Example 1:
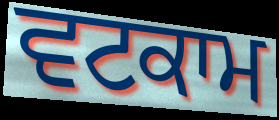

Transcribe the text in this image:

ਵਟਕਾਮ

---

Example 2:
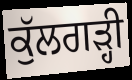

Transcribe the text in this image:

ਕੁੱਲਗੜ੍ਹੀ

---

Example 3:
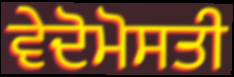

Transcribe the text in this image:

ਵੇਦੋਮੋਸਤੀ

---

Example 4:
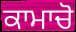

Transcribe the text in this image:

ਕਾਮਾਚੋ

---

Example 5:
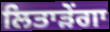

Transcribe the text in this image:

ਲਿਤਾੜੇਂਗਾ